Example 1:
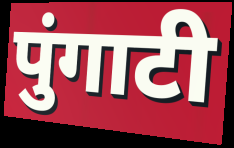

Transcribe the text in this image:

पुंगाटी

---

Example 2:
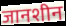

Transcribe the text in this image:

जानशीन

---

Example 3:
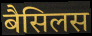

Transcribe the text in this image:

बैसिलस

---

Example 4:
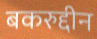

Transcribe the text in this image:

बकरुद्दीन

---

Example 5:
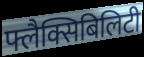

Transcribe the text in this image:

फ्लैक्सिबिलिटी